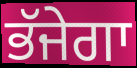
ਭੱਜੇਗਾ